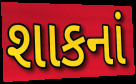
શાકનાં